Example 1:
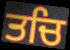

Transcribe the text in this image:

ਤਚਿ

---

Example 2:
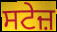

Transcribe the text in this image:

ਸਟੇਜ਼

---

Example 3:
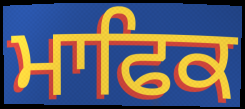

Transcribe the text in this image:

ਮਾਫਿਕ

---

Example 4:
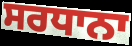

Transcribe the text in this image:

ਸਰਧਾਨਾ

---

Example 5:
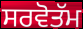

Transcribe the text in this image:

ਸਰਵੋਤੱਮ